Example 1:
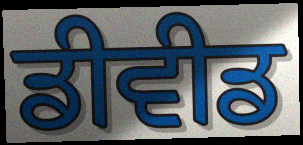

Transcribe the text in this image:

ਡੀਵੀਡ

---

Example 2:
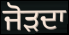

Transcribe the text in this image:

ਜੋੜਦਾ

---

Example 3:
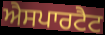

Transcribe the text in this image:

ਐਸਪਾਰਟੈਟ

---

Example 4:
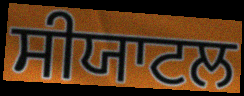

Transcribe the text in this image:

ਸੀਯਾਟਲ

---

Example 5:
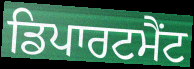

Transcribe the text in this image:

ਡਿਪਾਰਟਮੈਂਟ